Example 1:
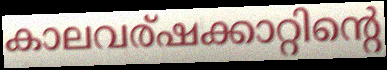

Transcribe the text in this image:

കാലവര്ഷക്കാറ്റിന്റെ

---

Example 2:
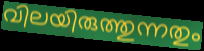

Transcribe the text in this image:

വിലയിരുത്തുന്നതും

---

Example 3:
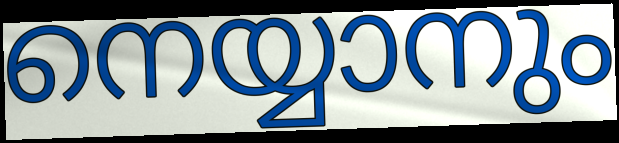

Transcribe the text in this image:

നെയ്യാനും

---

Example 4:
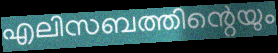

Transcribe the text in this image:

എലിസബത്തിന്റെയും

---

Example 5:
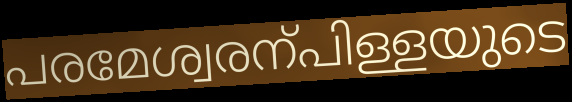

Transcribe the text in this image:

പരമേശ്വരന്പിള്ളയുടെ